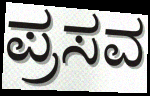
ಪ್ರಸವ